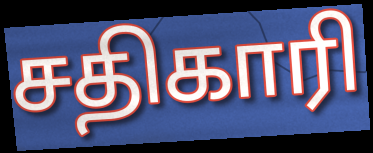
சதிகாரி